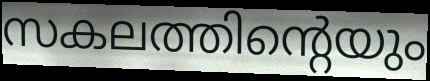
സകലത്തിന്റെയും